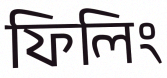
ফিলিং